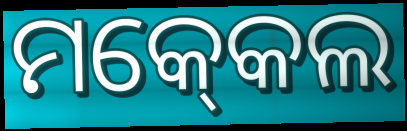
ମକ୍‍କେଲ